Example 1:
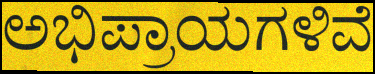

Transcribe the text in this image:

ಅಭಿಪ್ರಾಯಗಳಿವೆ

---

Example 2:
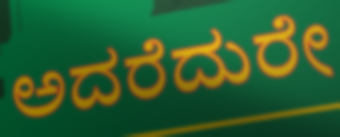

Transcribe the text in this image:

ಅದರೆದುರೇ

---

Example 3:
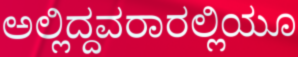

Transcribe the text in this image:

ಅಲ್ಲಿದ್ದವರಾರಲ್ಲಿಯೂ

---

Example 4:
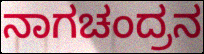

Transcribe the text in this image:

ನಾಗಚಂದ್ರನ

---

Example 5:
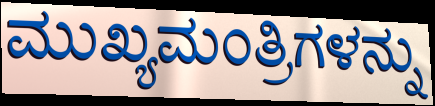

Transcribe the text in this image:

ಮುಖ್ಯಮಂತ್ರಿಗಳನ್ನು